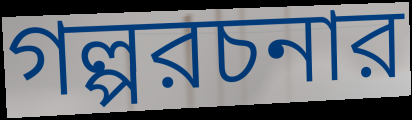
গল্পরচনার